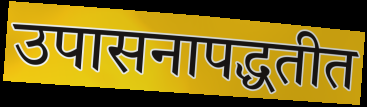
उपासनापद्धतीत